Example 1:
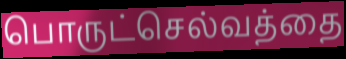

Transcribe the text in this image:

பொருட்செல்வத்தை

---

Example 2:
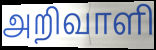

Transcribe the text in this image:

அறிவாளி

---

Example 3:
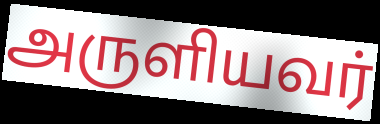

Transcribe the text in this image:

அருளியவர்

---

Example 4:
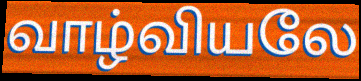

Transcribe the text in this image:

வாழ்வியலே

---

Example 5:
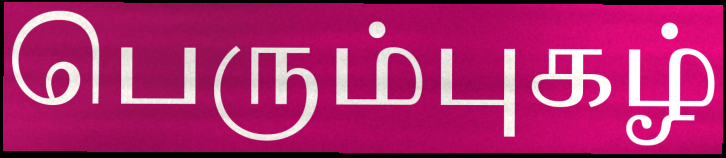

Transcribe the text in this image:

பெரும்புகழ்